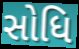
સોધિ